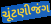
ચૂંટણીજંગ